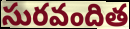
సురవందిత